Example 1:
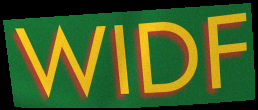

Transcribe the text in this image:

WIDF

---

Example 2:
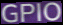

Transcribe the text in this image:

GPIO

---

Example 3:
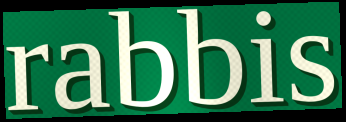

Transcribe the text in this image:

rabbis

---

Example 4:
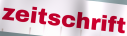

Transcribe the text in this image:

zeitschrift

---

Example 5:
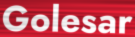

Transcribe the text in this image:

Golesar